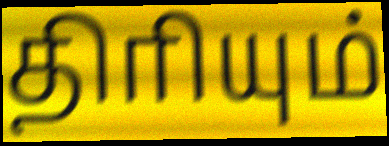
திரியும்